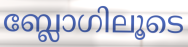
ബ്ലോഗിലൂടെ